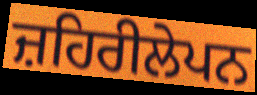
ਜ਼ਹਿਰੀਲੇਪਨ